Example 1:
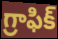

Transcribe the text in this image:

గ్రాఫిక్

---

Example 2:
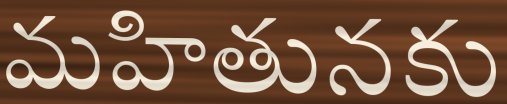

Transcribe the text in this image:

మహితునకు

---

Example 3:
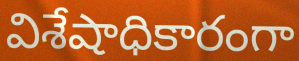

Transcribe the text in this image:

విశేషాధికారంగా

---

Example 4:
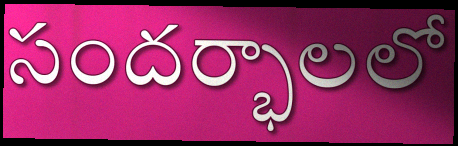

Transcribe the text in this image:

సందర్భాలలో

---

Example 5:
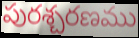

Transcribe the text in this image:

పురశ్చరణము